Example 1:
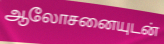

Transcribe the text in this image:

ஆலோசனையுடன்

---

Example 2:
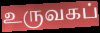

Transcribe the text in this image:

உருவகப்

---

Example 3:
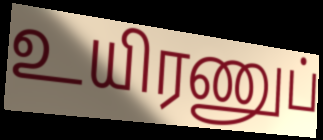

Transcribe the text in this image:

உயிரணுப்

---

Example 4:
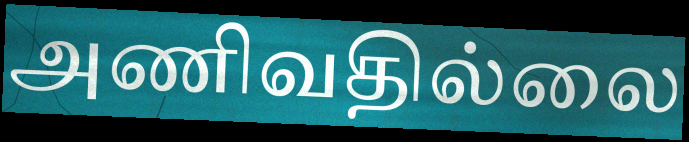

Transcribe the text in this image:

அணிவதில்லை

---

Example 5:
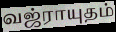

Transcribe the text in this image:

வஜ்ராயுதம்